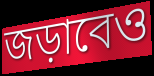
জড়াবেও